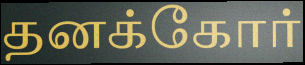
தனக்கோர்